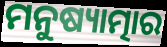
ମନୁଷ୍ୟାତ୍ମାର